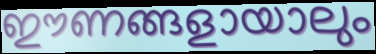
ഈണങ്ങളായാലും